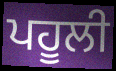
ਪਹੂਲੀ